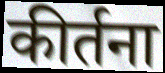
कीर्तना